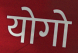
योगो